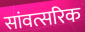
सांवत्सरिक